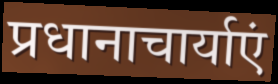
प्रधानाचार्याएं